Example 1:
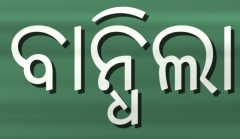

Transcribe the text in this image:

ବାନ୍ଧିଲା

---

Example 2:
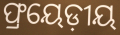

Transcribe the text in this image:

ଫ୍ରୟେଡ଼ୀୟ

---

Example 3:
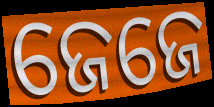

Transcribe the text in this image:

ଜେଜେ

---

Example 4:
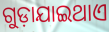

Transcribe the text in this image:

ଗୁଡ଼ାଯାଇଥାଏ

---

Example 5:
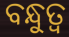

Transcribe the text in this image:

ବନ୍ଧୁତ୍ୱ